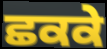
ਛਕਕੇ